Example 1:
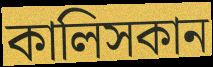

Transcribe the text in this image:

কালিসকান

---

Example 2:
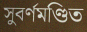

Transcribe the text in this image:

সুবর্ণমণ্ডিত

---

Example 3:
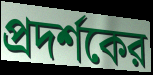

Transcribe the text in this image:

প্রদর্শকের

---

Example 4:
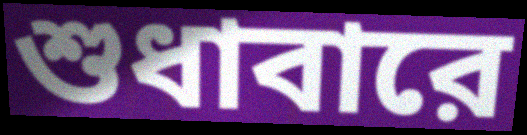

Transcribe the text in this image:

শুধাবারে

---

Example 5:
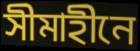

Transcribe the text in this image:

সীমাহীনে